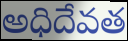
అధిదేవత